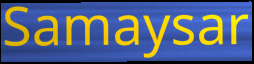
Samaysar